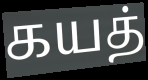
கயத்